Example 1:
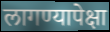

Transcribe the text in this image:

लागण्यापेक्षा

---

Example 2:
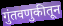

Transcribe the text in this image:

गुंतवणुकीतून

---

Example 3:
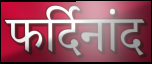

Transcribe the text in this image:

फर्दिनांद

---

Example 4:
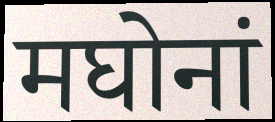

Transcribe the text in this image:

मघोनां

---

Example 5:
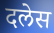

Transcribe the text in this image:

दलेस